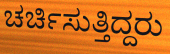
ಚರ್ಚಿಸುತ್ತಿದ್ದರು